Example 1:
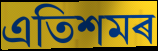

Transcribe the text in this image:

এতিশমৰ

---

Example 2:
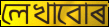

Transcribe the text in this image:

লেখাবোৰ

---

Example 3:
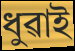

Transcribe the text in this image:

ধুৱাই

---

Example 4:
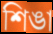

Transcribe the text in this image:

শিঙা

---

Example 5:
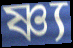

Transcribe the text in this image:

ষ্ণ্য